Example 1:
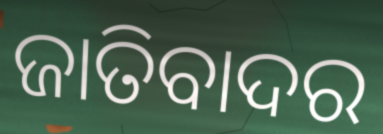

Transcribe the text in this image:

ଜାତିବାଦର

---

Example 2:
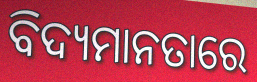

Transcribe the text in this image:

ବିଦ୍ୟମାନତାରେ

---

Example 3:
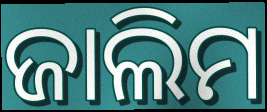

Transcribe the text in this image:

ଜାଲିମ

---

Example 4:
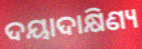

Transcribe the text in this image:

ଦୟାଦାକ୍ଷିଣ୍ୟ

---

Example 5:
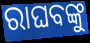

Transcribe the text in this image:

ରାଘବଙ୍କୁ